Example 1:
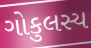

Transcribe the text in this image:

ગોકુલસ્ય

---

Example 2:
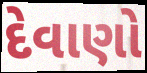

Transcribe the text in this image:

દેવાણો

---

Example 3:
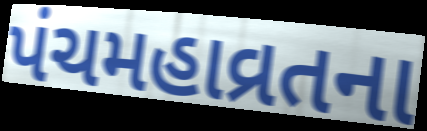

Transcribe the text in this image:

પંચમહાવ્રતના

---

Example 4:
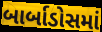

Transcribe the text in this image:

બાર્બાડોસમાં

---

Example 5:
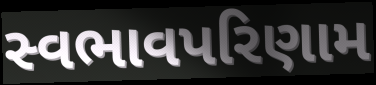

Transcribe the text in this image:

સ્વભાવપરિણામ